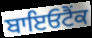
ਬਾਇਓਟੈਂਕ